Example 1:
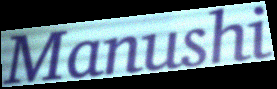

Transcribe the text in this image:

Manushi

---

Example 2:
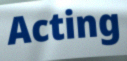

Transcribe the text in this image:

Acting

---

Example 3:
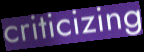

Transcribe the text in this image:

criticizing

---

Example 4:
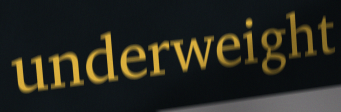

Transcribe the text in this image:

underweight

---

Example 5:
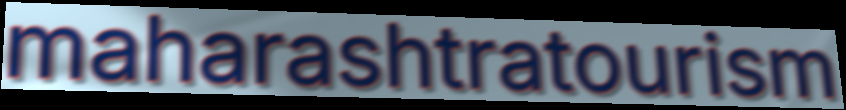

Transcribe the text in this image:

maharashtratourism